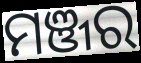
ମଞ୍ଜର